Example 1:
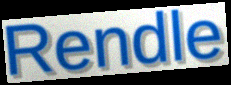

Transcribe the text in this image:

Rendle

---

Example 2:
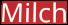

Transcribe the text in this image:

Milch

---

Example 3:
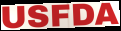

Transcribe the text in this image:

USFDA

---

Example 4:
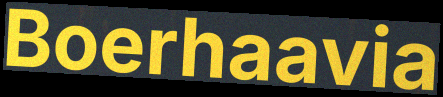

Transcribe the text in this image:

Boerhaavia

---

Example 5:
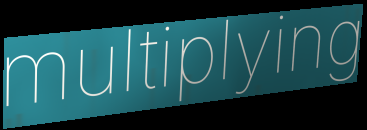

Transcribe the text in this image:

multiplying